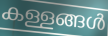
കള്ളങ്ങൾ